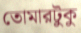
তোমারটুকু